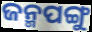
ଜନ୍ମପଙ୍ଗୁ